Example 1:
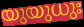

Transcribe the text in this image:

യുയുധുഃ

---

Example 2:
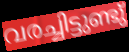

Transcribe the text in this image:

വരച്ചിട്ടുണ്ടു്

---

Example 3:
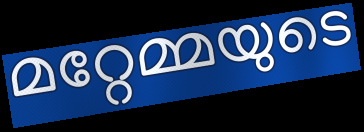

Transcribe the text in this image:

മറ്റേമ്മയുടെ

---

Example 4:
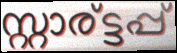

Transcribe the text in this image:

സ്റ്റാര്ട്ടപ്പ്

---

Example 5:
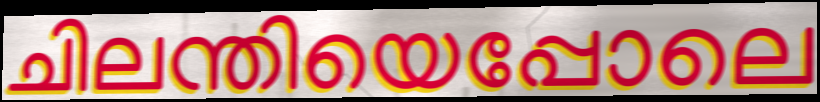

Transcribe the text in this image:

ചിലന്തിയെപ്പോലെ